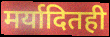
मर्यादितही